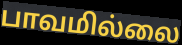
பாவமில்லை